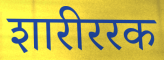
शारीररक